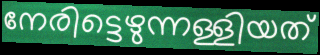
നേരിട്ടെഴുന്നള്ളിയത്